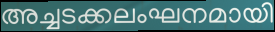
അച്ചടക്കലംഘനമായി